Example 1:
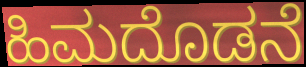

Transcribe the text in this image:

ಹಿಮದೊಡನೆ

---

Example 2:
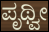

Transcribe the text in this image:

ಪೃಥ್ವೀ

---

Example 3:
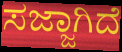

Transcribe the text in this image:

ಸಜ್ಜಾಗಿದೆ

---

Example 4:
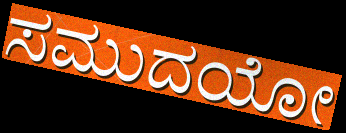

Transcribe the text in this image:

ಸಮುದಯೋ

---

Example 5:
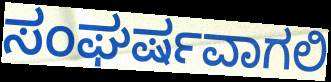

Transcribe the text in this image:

ಸಂಘರ್ಷವಾಗಲಿ